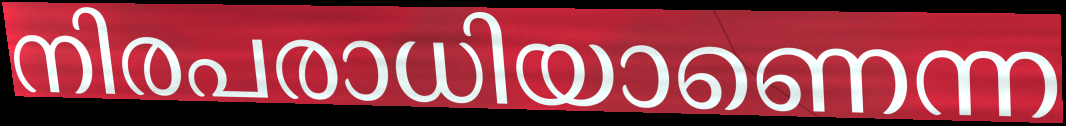
നിരപരാധിയാണെന്ന